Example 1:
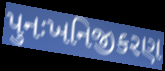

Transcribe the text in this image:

પુનઃખનિજીકરણ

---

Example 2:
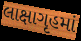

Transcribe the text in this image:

લાક્ષાગૃહમાં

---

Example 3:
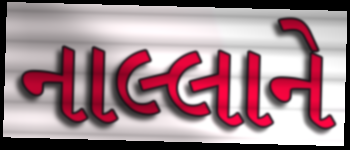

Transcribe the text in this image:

નાલ્લાને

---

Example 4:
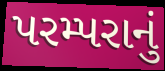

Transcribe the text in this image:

પરમ્પરાનું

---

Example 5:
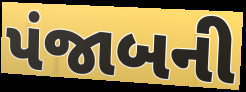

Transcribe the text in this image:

પંજાબની